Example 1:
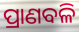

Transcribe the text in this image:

ପ୍ରାଣବଳି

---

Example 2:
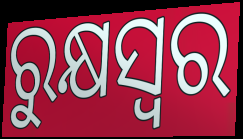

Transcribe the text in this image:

ରୁକ୍ଷସ୍ୱର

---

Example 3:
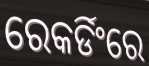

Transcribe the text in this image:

ରେକର୍ଡିଂରେ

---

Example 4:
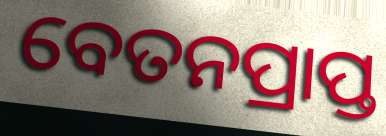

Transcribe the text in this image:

ବେତନପ୍ରାପ୍ତ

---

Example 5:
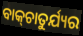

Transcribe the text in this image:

ବାକ୍‍ଚାତୁର୍ଯ୍ୟର